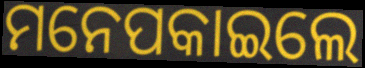
ମନେପକାଇଲେ